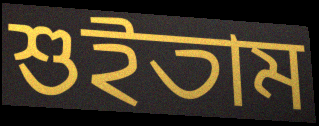
শুইতাম